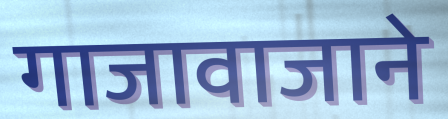
गाजावाजाने